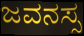
ಜವನಸ್ಸ